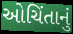
ઓચિંતાનું